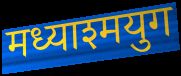
मध्याश्मयुग